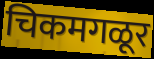
चिकमगळूर